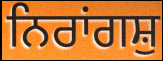
ਨਿਰਾਂਗਸ਼ੁ